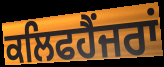
ਕਲਿਫਹੈਂਜਰਾਂ